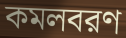
কমলবরণ